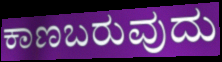
ಕಾಣಬರುವುದು